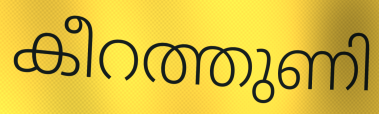
കീറത്തുണി